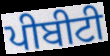
ਪੀਬੀਟੀ